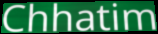
Chhatim